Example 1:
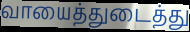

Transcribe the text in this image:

வாயைத்துடைத்து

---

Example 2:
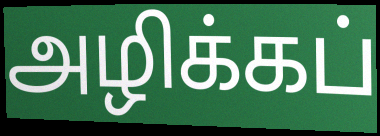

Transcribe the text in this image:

அழிக்கப்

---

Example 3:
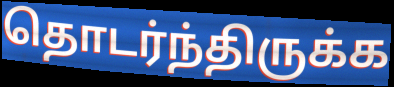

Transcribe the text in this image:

தொடர்ந்திருக்க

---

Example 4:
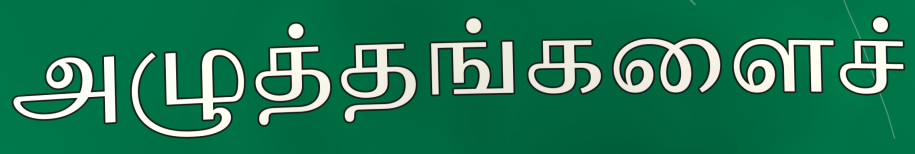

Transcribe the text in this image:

அழுத்தங்களைச்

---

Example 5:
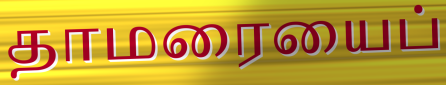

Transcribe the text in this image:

தாமரையைப்